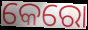
କେରୋ